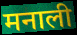
मनाली